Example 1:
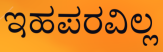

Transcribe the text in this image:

ಇಹಪರವಿಲ್ಲ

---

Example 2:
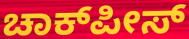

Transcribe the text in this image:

ಚಾಕ್‍ಪೀಸ್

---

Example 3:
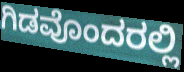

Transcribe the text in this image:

ಗಿಡವೊಂದರಲ್ಲಿ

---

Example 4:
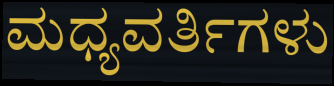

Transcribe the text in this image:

ಮಧ್ಯವರ್ತಿಗಳು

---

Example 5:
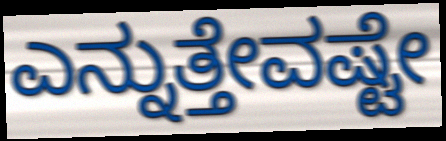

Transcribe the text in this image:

ಎನ್ನುತ್ತೇವಷ್ಟೇ